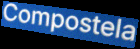
Compostela